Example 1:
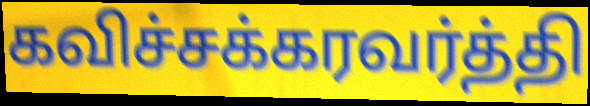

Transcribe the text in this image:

கவிச்சக்கரவர்த்தி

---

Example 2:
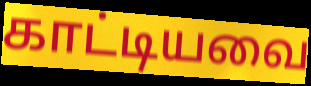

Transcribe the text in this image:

காட்டியவை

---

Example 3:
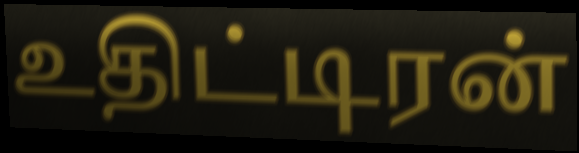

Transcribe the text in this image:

உதிட்டிரன்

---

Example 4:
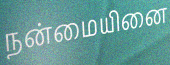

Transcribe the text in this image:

நன்மையினை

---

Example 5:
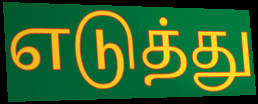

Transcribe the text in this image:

எடுத்து